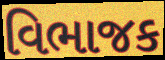
વિભાજક